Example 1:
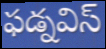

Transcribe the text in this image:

ఫడ్నవిస్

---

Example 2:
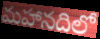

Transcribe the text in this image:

మహానదిలో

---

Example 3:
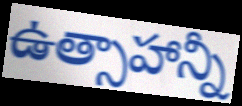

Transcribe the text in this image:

ఉత్సాహాన్నీ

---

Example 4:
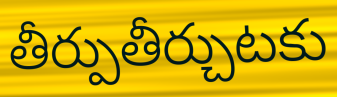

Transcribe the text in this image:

తీర్పుతీర్చుటకు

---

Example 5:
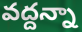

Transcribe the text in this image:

వద్దన్నా